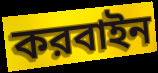
করবাইন